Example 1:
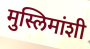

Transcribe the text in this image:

मुस्लिमांशी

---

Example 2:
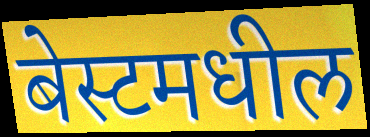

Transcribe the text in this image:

बेस्टमधील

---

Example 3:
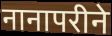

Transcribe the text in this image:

नानापरीने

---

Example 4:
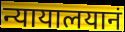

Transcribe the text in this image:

न्यायालयानं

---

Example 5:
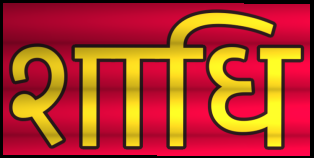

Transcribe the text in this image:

शाधि